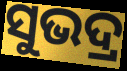
ସୁଭଦ୍ର